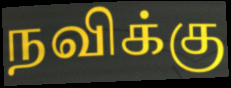
நவிக்கு